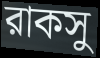
রাকসু